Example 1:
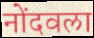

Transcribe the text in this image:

नोंदवला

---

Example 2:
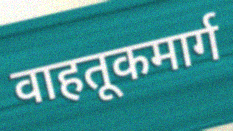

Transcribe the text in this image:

वाहतूकमार्ग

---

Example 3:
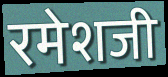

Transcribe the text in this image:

रमेशजी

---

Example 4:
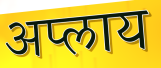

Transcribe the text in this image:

अप्लाय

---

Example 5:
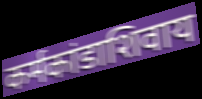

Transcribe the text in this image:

कर्मकांडाशिवाय